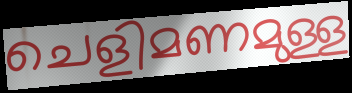
ചെളിമണമുള്ള